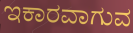
ಇಕಾರವಾಗುವ